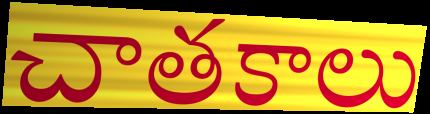
చాతకాలు